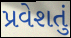
પ્રવેશતું